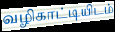
வழிகாட்டியிடம்